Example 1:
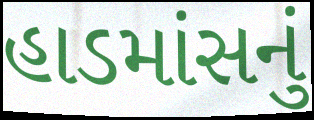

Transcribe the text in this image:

હાડમાંસનું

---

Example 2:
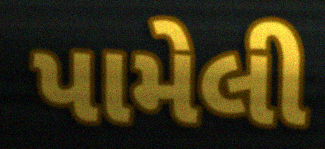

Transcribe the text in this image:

પામેલી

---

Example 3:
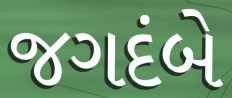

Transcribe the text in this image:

જગદંબે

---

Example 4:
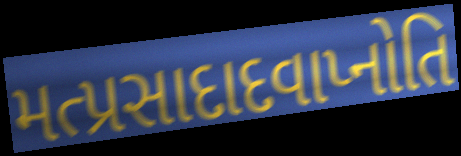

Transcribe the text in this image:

મત્પ્રસાદાદવાપ્નોતિ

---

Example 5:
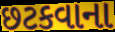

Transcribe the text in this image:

છટકવાના